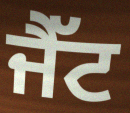
ਜੈੱਟ